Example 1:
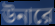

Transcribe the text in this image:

উনারে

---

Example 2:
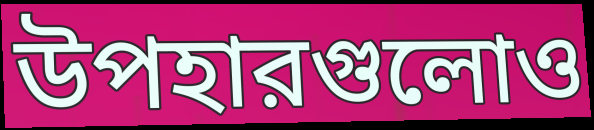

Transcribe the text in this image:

উপহারগুলোও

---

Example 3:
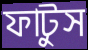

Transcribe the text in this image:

ফাটুস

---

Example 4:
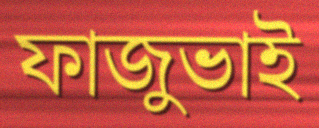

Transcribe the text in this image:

ফাজুভাই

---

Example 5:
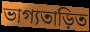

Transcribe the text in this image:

ভাগ্যতাড়িত